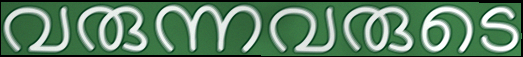
വരുന്നവരുടെ